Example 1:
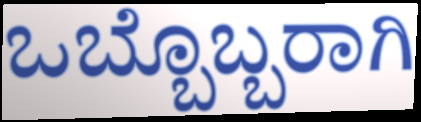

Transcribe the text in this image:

ಒಬ್ಬೊಬ್ಬರಾಗಿ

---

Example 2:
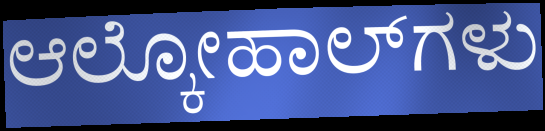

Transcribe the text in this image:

ಆಲ್ಕೋಹಾಲ್‌ಗಳು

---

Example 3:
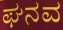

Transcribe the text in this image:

ಘನವ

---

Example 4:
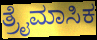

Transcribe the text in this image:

ತ್ರೈಮಾಸಿಕ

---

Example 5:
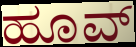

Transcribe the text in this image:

ಹೂವ್